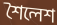
শৈলেশ